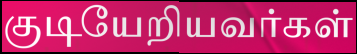
குடியேறியவர்கள்